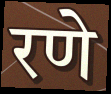
रणे